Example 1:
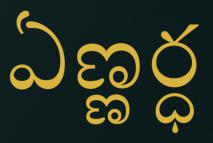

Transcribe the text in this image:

ఏణ్ణర్ధ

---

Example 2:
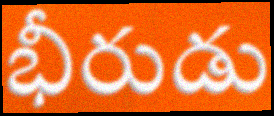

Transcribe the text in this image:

భీరుడు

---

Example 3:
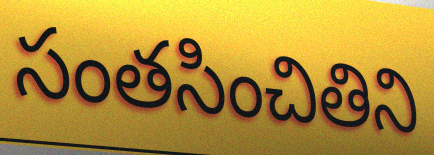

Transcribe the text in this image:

సంతసించితిని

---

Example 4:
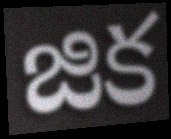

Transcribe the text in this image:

జిక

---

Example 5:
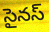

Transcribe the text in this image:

సైనస్